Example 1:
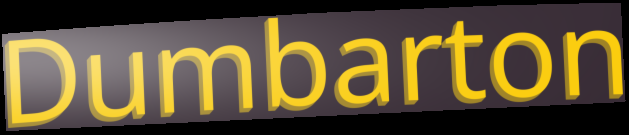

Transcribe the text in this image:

Dumbarton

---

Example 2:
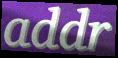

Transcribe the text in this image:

addr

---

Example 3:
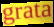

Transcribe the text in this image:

grata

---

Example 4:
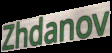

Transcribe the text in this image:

Zhdanov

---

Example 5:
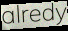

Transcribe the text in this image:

alredy